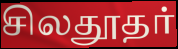
சிலதூதர்